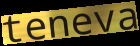
teneva